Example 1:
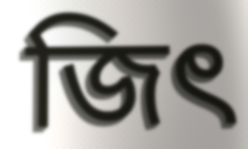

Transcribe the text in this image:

জিৎ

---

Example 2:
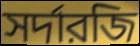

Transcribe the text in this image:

সর্দারজি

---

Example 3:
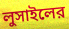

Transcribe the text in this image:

লুসাইলের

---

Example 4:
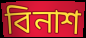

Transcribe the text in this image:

বিনাশ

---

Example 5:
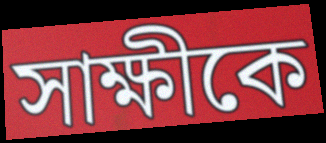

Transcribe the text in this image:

সাক্ষীকে